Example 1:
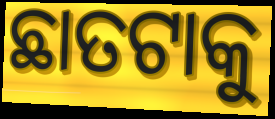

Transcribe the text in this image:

ଛାତଟାକୁ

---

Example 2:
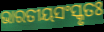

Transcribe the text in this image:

ଭାରତୀୟସଂସ୍କୃତଃ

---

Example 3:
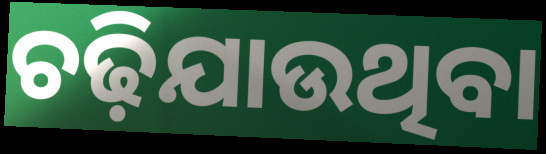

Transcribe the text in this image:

ଚଢ଼ିଯାଉଥିବା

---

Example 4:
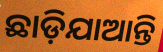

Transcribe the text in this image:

ଛାଡ଼ିଯାଆନ୍ତି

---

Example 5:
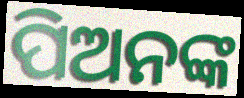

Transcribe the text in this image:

ପିଅନଙ୍କ